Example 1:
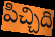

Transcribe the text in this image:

పిచ్చిది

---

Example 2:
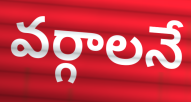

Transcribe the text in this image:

వర్గాలనే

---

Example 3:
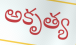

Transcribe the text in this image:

అకృత్య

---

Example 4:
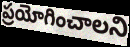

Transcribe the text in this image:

ప్రయోగించాలని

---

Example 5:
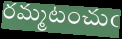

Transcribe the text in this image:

రమ్మటంచుఁ